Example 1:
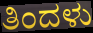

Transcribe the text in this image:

ತಿಂದಳು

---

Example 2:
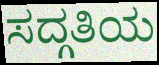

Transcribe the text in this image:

ಸದ್ಗತಿಯ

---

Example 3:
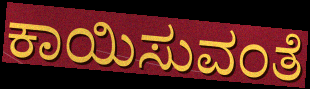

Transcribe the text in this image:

ಕಾಯಿಸುವಂತೆ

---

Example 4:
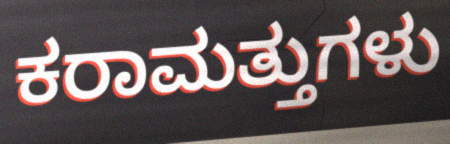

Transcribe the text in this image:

ಕರಾಮತ್ತುಗಳು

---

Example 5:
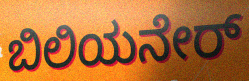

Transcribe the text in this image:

ಬಿಲಿಯನೇರ್